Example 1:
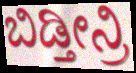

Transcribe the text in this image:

ಬಿಡ್ತೀನ್ರಿ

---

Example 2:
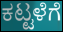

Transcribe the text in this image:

ಕಟ್ಟಳೆಗೆ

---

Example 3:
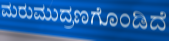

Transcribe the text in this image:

ಮರುಮುದ್ರಣಗೊಂಡಿದೆ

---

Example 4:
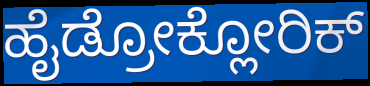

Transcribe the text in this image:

ಹೈಡ್ರೋಕ್ಲೋರಿಕ್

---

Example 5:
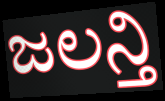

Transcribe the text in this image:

ಜಲನ್ತಿ